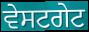
ਵੇਸਟਗੇਟ